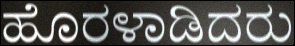
ಹೊರಳಾಡಿದರು